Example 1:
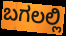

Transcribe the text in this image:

ಬಗಲಲ್ಲಿ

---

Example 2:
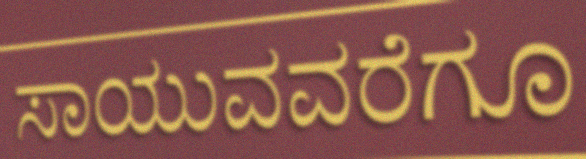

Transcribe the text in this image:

ಸಾಯುವವರೆಗೂ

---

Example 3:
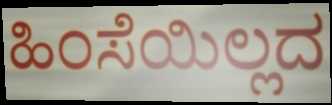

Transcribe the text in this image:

ಹಿಂಸೆಯಿಲ್ಲದ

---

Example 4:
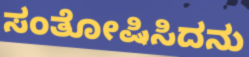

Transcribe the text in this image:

ಸಂತೋಷಿಸಿದನು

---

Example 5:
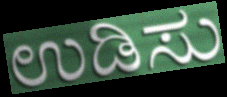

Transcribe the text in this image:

ಉಡಿಸು